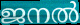
ജനൽ